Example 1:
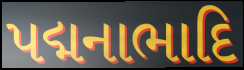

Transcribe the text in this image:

પદ્મનાભાદિ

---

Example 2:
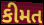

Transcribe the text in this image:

કીમત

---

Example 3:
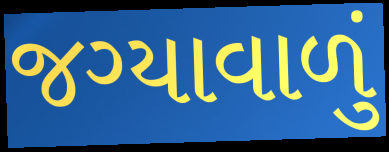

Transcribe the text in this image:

જગ્યાવાળું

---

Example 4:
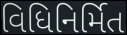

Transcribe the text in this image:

વિધિનિર્મિત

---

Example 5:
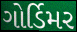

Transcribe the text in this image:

ગોર્ડિમર